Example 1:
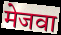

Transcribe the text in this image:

मेजवा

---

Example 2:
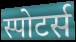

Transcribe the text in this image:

स्पोटर्स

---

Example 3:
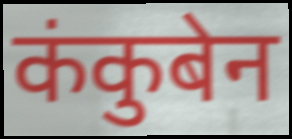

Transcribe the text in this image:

कंकुबेन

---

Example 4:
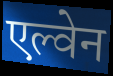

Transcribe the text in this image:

एल्वेन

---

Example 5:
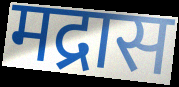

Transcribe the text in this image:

मद्रास